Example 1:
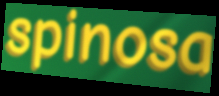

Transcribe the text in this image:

spinosa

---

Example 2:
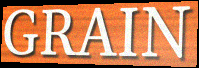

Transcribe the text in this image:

GRAIN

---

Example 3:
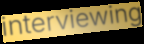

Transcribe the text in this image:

interviewing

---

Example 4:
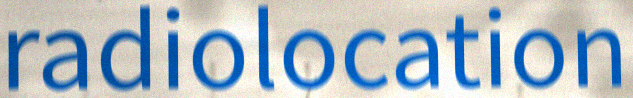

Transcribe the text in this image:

radiolocation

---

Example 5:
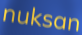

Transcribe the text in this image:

nuksan